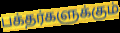
பக்தர்களுக்கும்